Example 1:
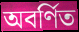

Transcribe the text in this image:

অবর্ণিত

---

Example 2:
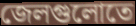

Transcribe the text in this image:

জেলগুলোতে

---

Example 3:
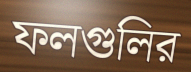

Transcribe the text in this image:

ফলগুলির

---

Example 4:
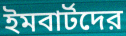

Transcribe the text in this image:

ইমবার্টদের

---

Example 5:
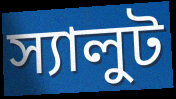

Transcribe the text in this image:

স্যালুট